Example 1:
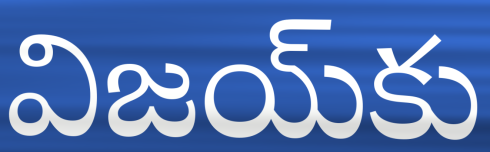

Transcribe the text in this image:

విజయ్‌కు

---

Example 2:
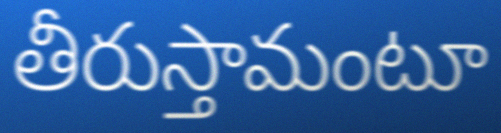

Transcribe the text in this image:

తీరుస్తామంటూ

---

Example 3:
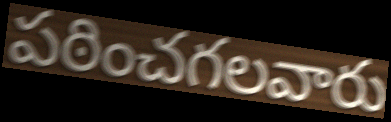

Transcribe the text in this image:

పఠించగలవారు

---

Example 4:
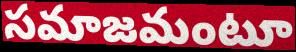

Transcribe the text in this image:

సమాజమంటూ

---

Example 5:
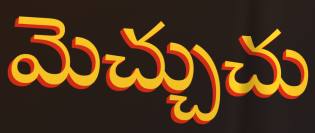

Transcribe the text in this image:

మెచ్చుచు